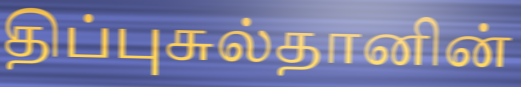
திப்புசுல்தானின்